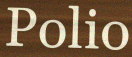
Polio